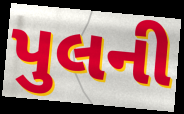
પુલની